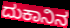
ದುಕಾನಿನ